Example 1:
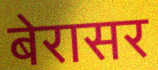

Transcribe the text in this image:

बेरासर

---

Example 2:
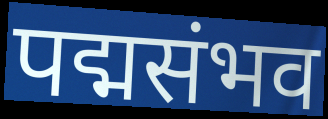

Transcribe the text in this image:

पद्मसंभव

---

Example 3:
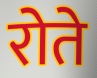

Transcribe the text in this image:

रोते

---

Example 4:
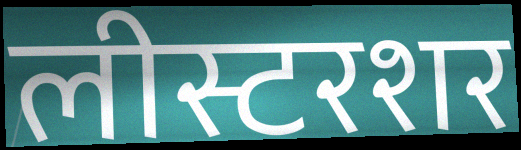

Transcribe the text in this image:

लीस्टरशर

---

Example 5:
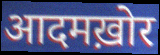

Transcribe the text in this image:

आदमख़ोर